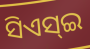
ସିଏସ୍ଇ